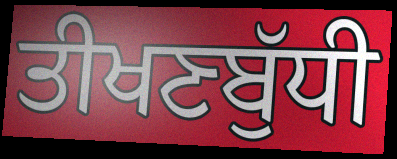
ਤੀਖਣਬੁੱਧੀ